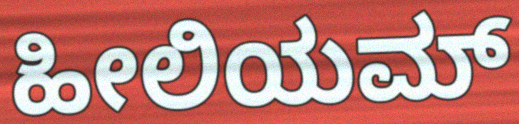
ಹೀಲಿಯಮ್